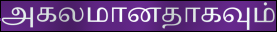
அகலமானதாகவும்